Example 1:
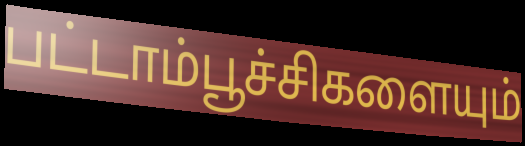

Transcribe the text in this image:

பட்டாம்பூச்சிகளையும்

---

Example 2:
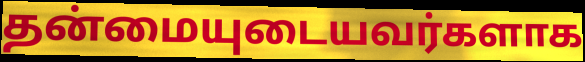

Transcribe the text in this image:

தன்மையுடையவர்களாக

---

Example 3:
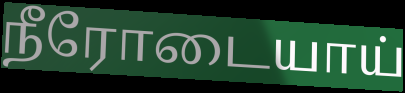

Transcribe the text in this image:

நீரோடையாய்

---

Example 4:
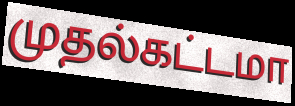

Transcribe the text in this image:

முதல்கட்டமா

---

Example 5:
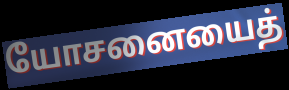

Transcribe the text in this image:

யோசனையைத்